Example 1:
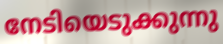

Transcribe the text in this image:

നേടിയെടുക്കുന്നു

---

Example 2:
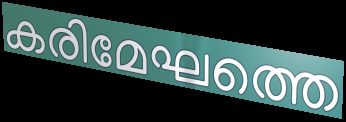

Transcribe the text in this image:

കരിമേഘത്തെ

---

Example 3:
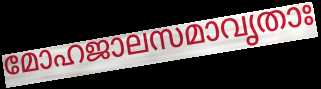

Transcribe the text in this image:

മോഹജാലസമാവൃതാഃ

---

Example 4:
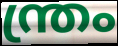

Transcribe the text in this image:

ന്ത്രം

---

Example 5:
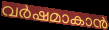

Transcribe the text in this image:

വർഷമാകാൻ